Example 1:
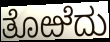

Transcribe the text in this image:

ತೊಱೆದು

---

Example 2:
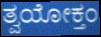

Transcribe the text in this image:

ತ್ವಯೋಕ್ತಂ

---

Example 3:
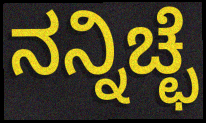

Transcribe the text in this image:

ನನ್ನಿಚ್ಛೆ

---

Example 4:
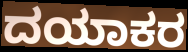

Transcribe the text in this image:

ದಯಾಕರ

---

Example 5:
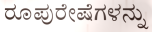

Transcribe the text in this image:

ರೂಪುರೇಷೆಗಳನ್ನು